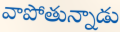
వాపోతున్నాడు